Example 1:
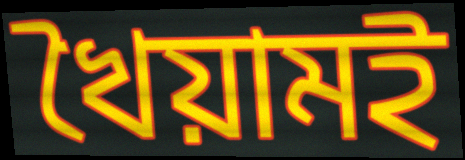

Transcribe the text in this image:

খৈয়ামই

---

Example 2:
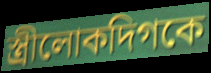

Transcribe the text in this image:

স্ত্রীলোকদিগকে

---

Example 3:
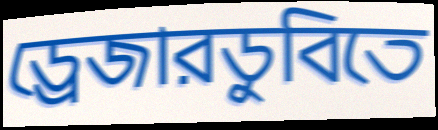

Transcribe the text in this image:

ড্রেজারডুবিতে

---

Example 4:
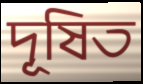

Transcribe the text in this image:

দূষিত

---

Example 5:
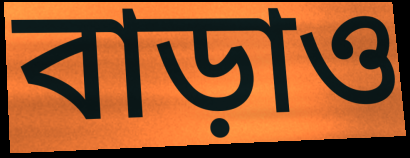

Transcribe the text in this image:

বাড়াও